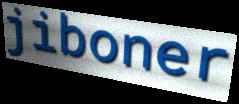
jiboner